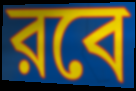
রবে